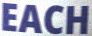
EACH